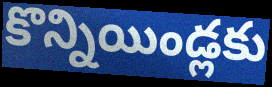
కొన్నియిండ్లకు